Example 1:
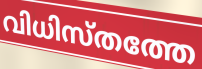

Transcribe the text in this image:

വിധിസ്തത്തേ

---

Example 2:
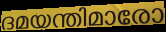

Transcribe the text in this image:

ദമയന്തിമാരോ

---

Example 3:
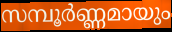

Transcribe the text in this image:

സമ്പൂർണ്ണമായും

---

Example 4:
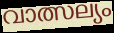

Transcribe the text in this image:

വാത്സല്യം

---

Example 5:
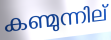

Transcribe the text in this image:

കണ്മുന്നില്